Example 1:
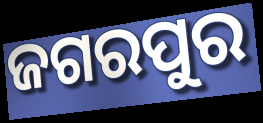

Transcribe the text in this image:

ଜଗରପୁର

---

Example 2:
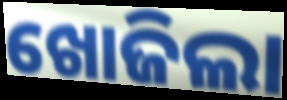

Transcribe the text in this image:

ଖୋଜିଲା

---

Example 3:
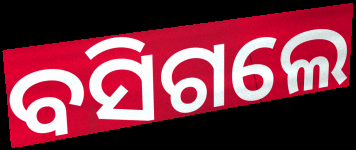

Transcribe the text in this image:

ବସିଗଲେ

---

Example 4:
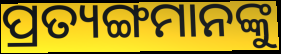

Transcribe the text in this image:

ପ୍ରତ୍ୟଙ୍ଗମାନଙ୍କୁ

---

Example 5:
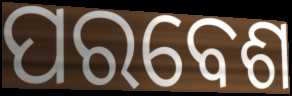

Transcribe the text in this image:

ପରବେଶ